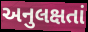
અનુલક્ષતાં